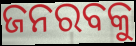
ଜନରବକୁ